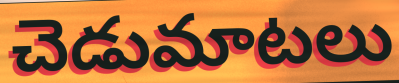
చెడుమాటలు